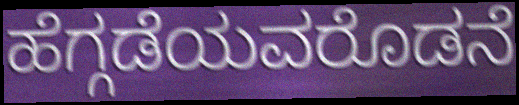
ಹೆಗ್ಗಡೆಯವರೊಡನೆ